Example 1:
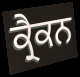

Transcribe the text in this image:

ਕ੍ਰੈਕਨ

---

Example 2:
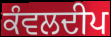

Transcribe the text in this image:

ਕੰਵਲਦੀਪ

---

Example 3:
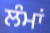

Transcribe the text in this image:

ਲੰਮਾਂ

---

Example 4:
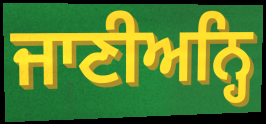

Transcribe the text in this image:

ਜਾਣੀਅਨ੍ਹਿ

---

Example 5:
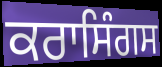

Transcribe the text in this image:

ਕਰਾਸਿੰਗਸ